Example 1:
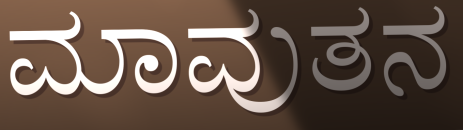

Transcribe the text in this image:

ಮಾವುತನ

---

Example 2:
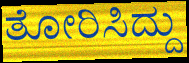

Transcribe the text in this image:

ತೋರಿಸಿದ್ದು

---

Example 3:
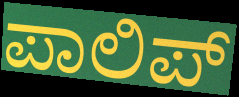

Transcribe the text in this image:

ಪಾಲಿಪ್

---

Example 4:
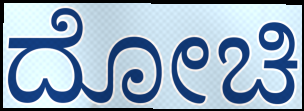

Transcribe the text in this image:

ದೋಚಿ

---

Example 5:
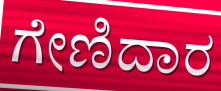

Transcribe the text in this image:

ಗೇಣಿದಾರ